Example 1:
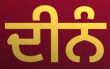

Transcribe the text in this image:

ਦੀਨੰ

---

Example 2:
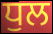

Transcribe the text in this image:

ਧੁਲ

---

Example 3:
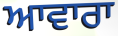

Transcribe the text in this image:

ਆਵਾਰਾ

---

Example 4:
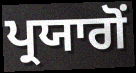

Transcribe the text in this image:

ਪ੍ਰਯਾਗੋਂ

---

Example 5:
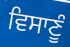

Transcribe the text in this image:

ਵਿਸਾਣੂੰ